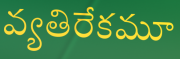
వ్యతిరేకమూ